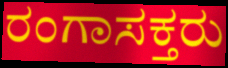
ರಂಗಾಸಕ್ತರು